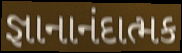
જ્ઞાનાનંદાત્મક